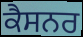
ਕੈਸਨਰ